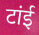
टांई